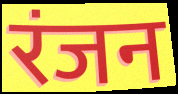
रंजन